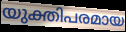
യുക്തിപരമായ